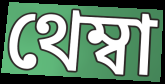
থেম্বা